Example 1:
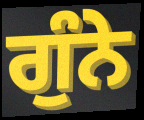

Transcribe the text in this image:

ਗੁੰਨੇ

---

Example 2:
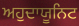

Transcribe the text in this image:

ਅਹੁਦਾਯੂਨਿਟ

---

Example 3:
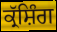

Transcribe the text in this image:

ਕ੍ਰੱਸ਼ਿੰਗ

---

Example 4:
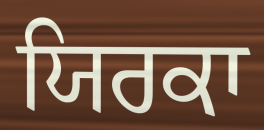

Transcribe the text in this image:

ਯਿਰਕਾ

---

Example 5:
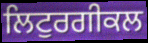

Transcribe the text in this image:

ਲਿਟੁਰਗੀਕਲ